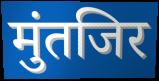
मुंतजिर